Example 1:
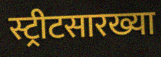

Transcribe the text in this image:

स्ट्रीटसारख्या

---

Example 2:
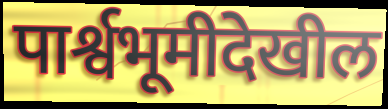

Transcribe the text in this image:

पार्श्वभूमीदेखील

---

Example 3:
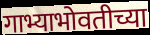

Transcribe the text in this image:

गाभ्याभोवतीच्या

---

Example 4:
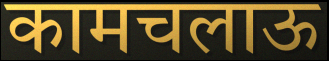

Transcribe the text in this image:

कामचलाऊ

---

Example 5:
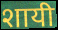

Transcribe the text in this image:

शायी